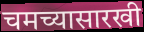
चमच्यासारखी